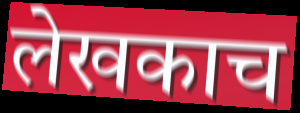
लेखकाच